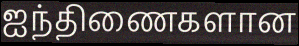
ஐந்திணைகளான